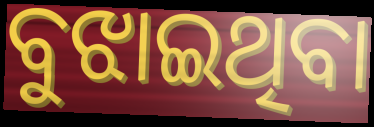
ବୁଝାଇଥିବା